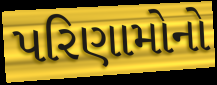
પરિણામોનો